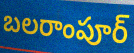
బలరాంపూర్